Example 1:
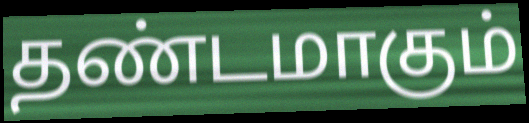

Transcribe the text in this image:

தண்டமாகும்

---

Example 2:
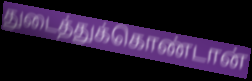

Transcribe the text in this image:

துடைத்துக்கொண்டான்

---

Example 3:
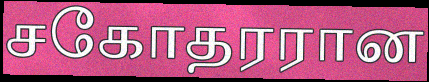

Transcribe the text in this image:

சகோதரரான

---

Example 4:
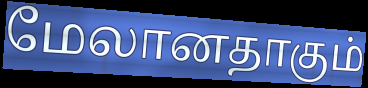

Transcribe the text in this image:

மேலானதாகும்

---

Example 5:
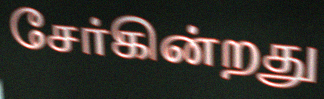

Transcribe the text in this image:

சேர்கின்றது